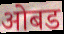
ओबड